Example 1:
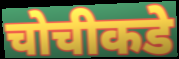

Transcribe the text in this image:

चोचीकडे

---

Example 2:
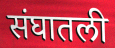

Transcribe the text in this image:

संघातली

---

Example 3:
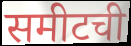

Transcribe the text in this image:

समीटची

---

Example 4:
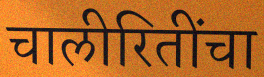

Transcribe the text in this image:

चालीरितींचा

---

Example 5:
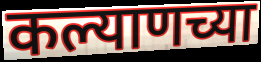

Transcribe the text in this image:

कल्याणच्या